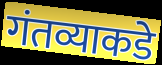
गंतव्याकडे